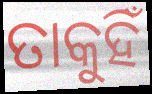
ତାକୁହିଁ